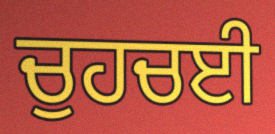
ਚੁਹਚਈ